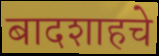
बादशाहचे